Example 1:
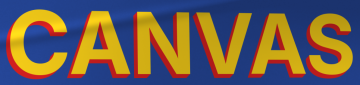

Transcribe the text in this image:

CANVAS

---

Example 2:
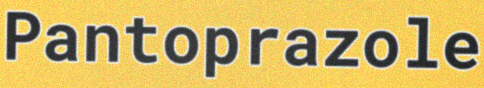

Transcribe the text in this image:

Pantoprazole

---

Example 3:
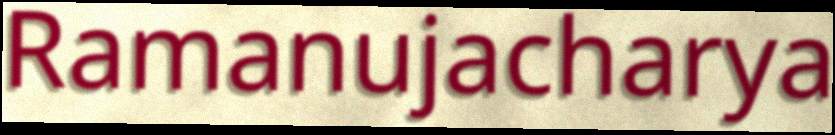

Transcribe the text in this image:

Ramanujacharya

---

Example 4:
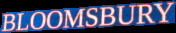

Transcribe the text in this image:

BLOOMSBURY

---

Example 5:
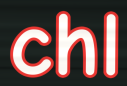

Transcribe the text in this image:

chl